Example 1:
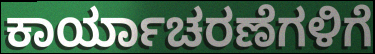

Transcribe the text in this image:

ಕಾರ್ಯಾಚರಣೆಗಳಿಗೆ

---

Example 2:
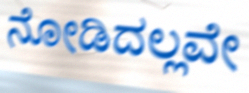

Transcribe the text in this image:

ನೋಡಿದಲ್ಲವೇ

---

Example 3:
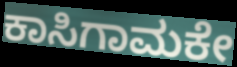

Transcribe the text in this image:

ಕಾಸಿಗಾಮಕೇ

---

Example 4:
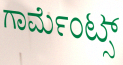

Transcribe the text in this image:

ಗಾರ್ಮೆಂಟ್ಸ್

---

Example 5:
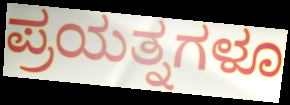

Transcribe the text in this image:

ಪ್ರಯತ್ನಗಳೂ